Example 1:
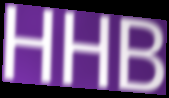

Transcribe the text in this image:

HHB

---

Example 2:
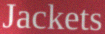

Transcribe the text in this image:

Jackets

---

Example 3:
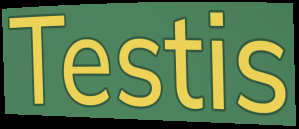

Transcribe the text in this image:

Testis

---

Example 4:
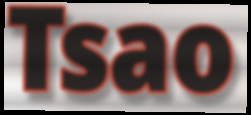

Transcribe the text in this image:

Tsao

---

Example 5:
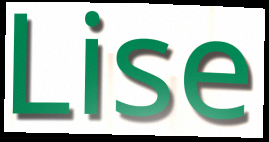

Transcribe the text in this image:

Lise